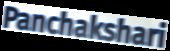
Panchakshari